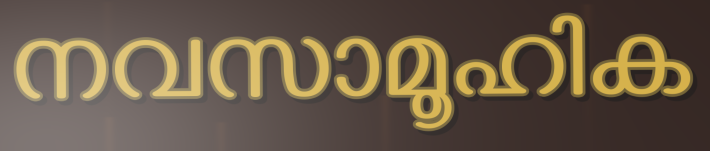
നവസാമൂഹിക